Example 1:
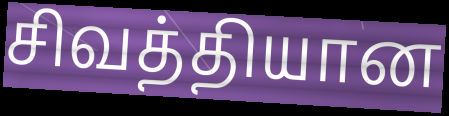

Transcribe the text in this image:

சிவத்தியான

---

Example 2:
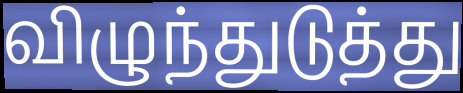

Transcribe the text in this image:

விழுந்துடுத்து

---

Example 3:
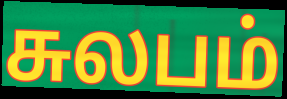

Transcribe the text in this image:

சுலபம்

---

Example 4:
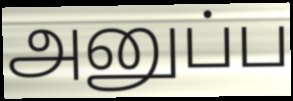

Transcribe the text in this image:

அனுப்ப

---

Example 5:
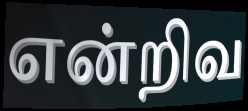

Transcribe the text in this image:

என்றிவ